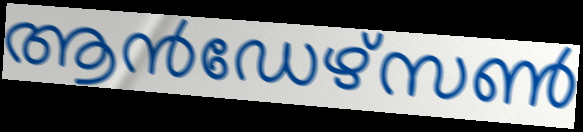
ആൻഡേഴ്സൺ